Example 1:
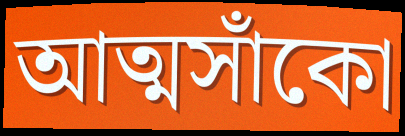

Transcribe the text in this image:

আত্মসাঁকো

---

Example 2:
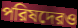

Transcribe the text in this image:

পরিষদেরও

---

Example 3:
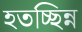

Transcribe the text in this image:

হতচ্ছিন্ন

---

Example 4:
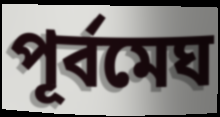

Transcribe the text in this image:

পূর্বমেঘ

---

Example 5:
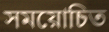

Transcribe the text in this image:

সময়োচিত